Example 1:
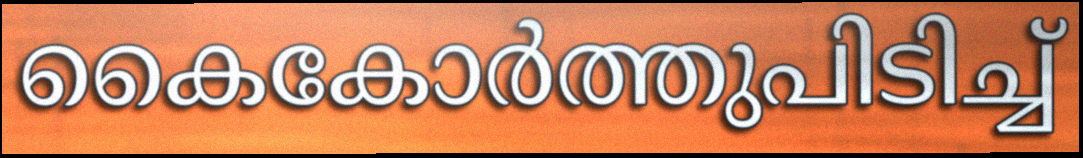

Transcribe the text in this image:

കൈകോർത്തുപിടിച്ച്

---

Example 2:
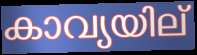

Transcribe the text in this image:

കാവ്യയില്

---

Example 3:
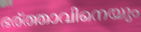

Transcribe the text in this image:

ഭര്ത്താവിനെയും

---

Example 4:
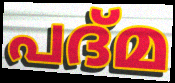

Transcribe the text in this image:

പദ്മ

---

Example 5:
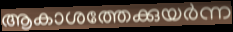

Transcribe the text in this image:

ആകാശത്തേക്കുയർന്ന